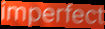
imperfect